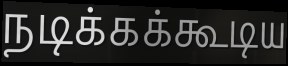
நடிக்கக்கூடிய